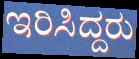
ಇರಿಸಿದ್ದರು